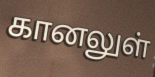
கானலுள்